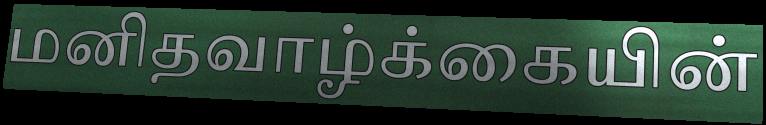
மனிதவாழ்க்கையின்